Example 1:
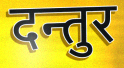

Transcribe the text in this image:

दन्तुर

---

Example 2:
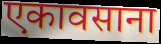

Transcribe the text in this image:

एकावसाना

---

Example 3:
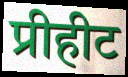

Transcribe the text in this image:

प्रीहीट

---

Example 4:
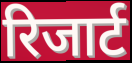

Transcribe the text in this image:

रिजार्ट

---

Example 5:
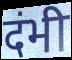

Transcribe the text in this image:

दंभी